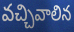
వచ్చివాలిన